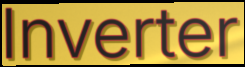
Inverter